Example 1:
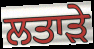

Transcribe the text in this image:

ਲਤਾਡ਼ੇ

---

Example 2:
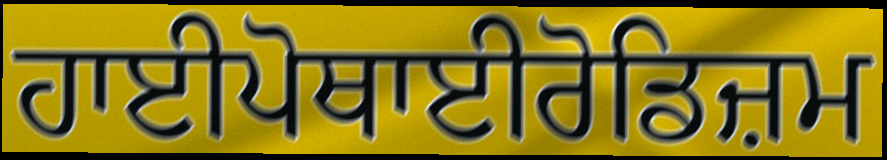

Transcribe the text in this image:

ਹਾਈਪੋਥਾਈਰੋਡਿਜ਼ਮ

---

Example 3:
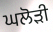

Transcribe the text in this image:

ਘਲੋਡ਼ੀ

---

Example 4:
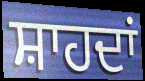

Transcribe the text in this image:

ਸ਼ਾਹਦਾਂ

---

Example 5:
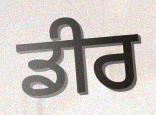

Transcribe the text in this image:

ਡੀਰ